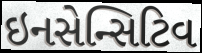
ઇનસેન્સિટિવ